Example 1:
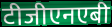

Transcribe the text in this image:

टीजीएनएबी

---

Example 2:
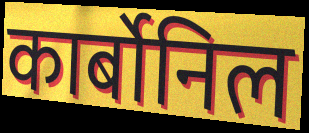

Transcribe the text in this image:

कार्बोनिल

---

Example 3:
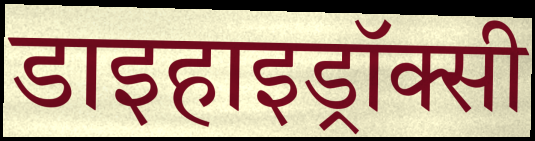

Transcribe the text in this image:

डाइहाइड्रॉक्सी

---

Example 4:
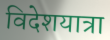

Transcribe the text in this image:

विदेशयात्रा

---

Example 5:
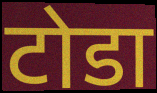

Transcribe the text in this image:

टोडा